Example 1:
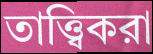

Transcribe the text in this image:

তাত্ত্বিকরা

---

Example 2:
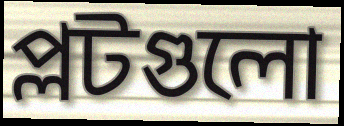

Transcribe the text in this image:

প্লটগুলো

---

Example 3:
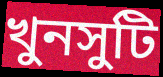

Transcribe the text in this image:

খুনসুটি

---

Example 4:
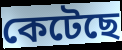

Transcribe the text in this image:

কেটেছে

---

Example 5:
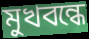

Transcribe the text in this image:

মুখবন্ধে